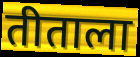
तीताला